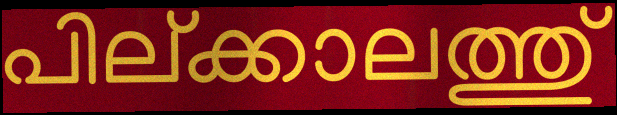
പില്ക്കാലത്തു്